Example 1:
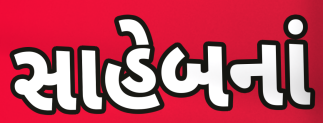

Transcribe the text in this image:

સાહેબનાં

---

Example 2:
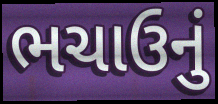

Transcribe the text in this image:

ભચાઉનું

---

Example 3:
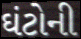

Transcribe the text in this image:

ઘંટોની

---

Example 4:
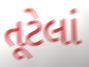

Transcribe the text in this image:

તૂટેલાં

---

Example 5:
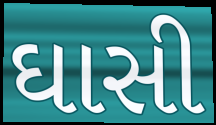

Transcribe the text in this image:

ઘાસી